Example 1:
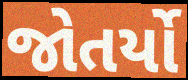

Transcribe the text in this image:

જોતર્યો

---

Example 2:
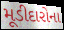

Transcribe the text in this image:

મૂડીદારોના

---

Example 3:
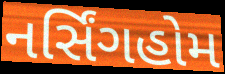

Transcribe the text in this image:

નર્સિંગહોમ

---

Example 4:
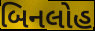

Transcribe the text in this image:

બિનલોહ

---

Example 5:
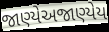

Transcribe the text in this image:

જાણ્યેઅજાણ્યેય